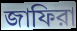
জাফিরা